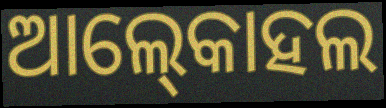
ଆଲ୍‍କୋହଲ